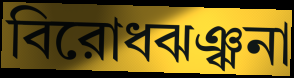
বিরোধঝঞ্ঝনা